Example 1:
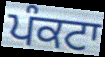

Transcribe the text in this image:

ਪੰਕਟਾ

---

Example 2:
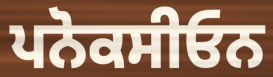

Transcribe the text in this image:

ਪਨੋਕਸੀਓਨ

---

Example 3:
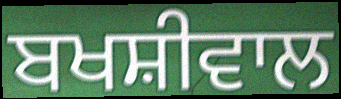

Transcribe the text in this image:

ਬਖਸ਼ੀਵਾਲ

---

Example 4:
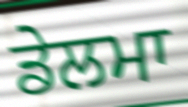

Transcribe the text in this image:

ਡੇਲਮਾ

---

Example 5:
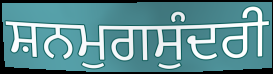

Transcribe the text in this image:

ਸ਼ਨਮੁਗਸੁੰਦਰੀ